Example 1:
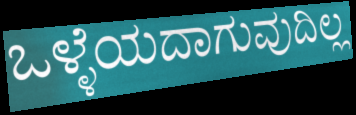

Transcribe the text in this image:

ಒಳ್ಳೆಯದಾಗುವುದಿಲ್ಲ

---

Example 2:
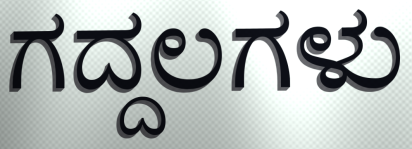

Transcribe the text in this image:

ಗದ್ದಲಗಳು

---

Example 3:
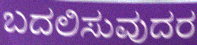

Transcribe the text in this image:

ಬದಲಿಸುವುದರ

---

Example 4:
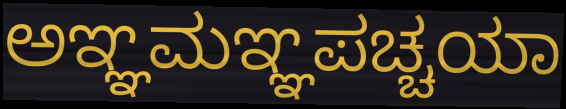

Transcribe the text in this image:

ಅಞ್ಞಮಞ್ಞಪಚ್ಚಯಾ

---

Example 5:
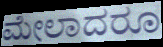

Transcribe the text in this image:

ಮೇಲಾದರೂ